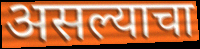
असल्याचा